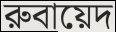
রুবায়েদ